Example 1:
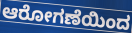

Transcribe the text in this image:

ಆರೋಗಣೆಯಿಂದ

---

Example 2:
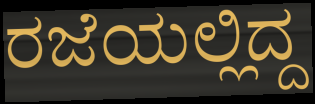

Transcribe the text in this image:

ರಜೆಯಲ್ಲಿದ್ದ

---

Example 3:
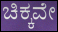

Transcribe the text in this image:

ಚಿಕ್ಕವೇ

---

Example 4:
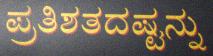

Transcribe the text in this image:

ಪ್ರತಿಶತದಷ್ಟನ್ನು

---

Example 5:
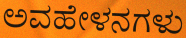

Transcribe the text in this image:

ಅವಹೇಳನಗಳು